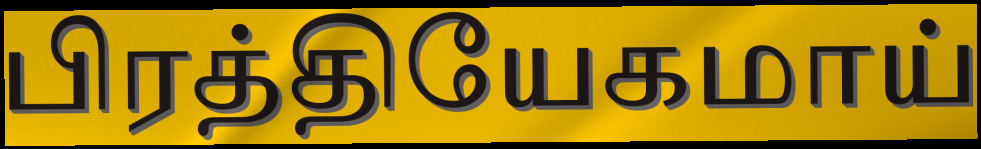
பிரத்தியேகமாய்